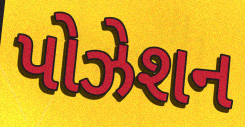
પોઝેશન